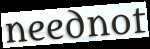
neednot